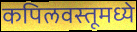
कपिलवस्तूमध्ये